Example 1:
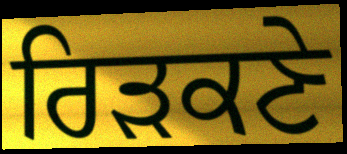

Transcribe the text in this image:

ਰਿੜਕਣੇ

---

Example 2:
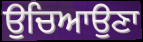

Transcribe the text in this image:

ਉਚਿਆਉਣਾ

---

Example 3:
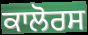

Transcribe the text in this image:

ਕਾਲੋਰਸ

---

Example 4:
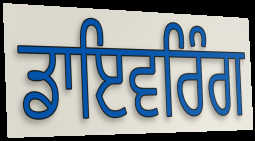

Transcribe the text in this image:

ਡਾਇਵਰਿੰਗ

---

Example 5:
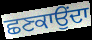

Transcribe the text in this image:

ਛਣਕਾਉਂਦਾ